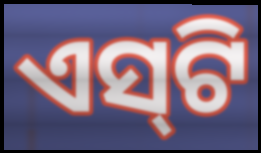
ଏସ୍‌ଟି